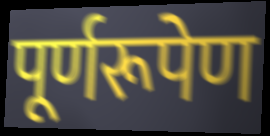
पूर्णरूपेण